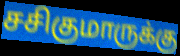
சசிகுமாருக்கு